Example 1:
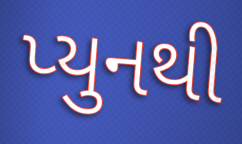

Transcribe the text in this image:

પ્યુનથી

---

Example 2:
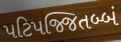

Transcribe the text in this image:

પટિપજ્જિતબ્બં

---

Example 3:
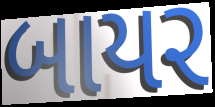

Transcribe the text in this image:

બાયર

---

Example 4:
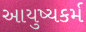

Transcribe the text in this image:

આયુષ્યકર્મ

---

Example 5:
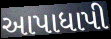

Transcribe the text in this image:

આપાધાપી